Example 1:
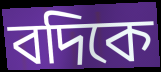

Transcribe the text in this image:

বদিকে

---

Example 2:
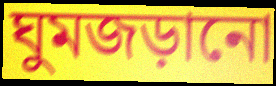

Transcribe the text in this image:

ঘুমজড়ানো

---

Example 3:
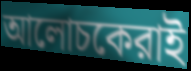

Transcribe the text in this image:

আলোচকেরাই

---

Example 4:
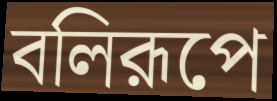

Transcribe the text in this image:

বলিরূপে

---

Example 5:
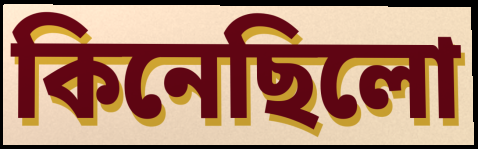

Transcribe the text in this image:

কিনেছিলো